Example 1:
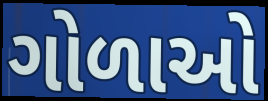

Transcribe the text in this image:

ગોળાઓ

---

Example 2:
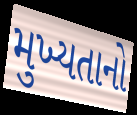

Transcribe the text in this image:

મુખ્યતાનો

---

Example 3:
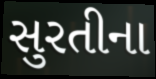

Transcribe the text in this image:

સુરતીના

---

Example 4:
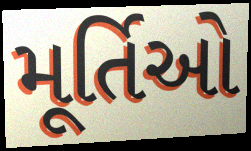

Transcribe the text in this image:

મૂર્તિઓ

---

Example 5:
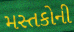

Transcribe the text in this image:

મસ્તકોની